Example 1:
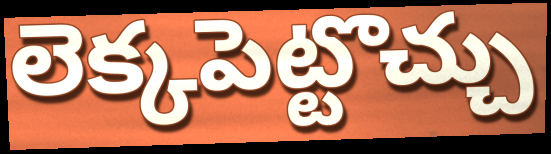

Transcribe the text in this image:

లెక్కపెట్టొచ్చు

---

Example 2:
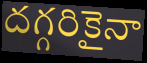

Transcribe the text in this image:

దగ్గరికైనా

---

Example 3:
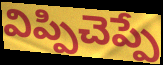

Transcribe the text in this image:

విప్పిచెప్పే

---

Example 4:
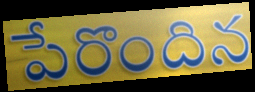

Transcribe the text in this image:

పేరొందిన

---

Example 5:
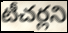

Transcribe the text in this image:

టీచర్లని